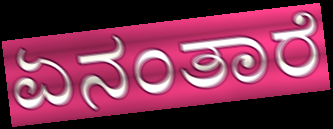
ಏನಂತಾರೆ